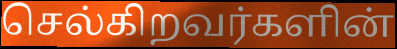
செல்கிறவர்களின்